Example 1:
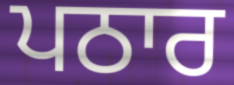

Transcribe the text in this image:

ਪਠਾਰ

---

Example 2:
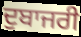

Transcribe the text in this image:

ਦੁਬਾਜਰੀ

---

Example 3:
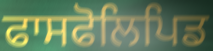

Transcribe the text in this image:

ਫਾਸਫੋਲਿਪਿਡ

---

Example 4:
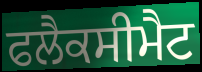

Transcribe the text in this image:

ਫਲੈਕਸੀਮੈਟ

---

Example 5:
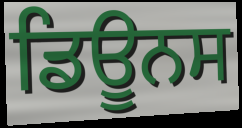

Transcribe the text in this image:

ਡਿਊਨਸ